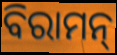
ବିରାମନ୍